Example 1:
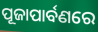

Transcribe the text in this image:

ପୂଜାପାର୍ବଣରେ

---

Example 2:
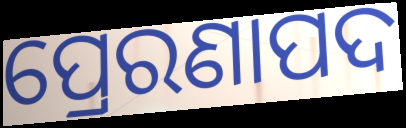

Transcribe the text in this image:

ପ୍ରେରଣାପଦ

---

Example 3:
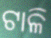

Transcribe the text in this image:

ଟାଳି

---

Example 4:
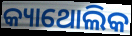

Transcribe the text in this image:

କ୍ୟାଥୋଲିକ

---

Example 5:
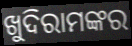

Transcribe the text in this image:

ଖୁଦିରାମଙ୍କର